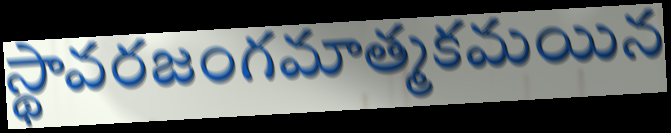
స్థావరజంగమాత్మకమయిన